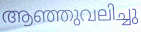
ആഞ്ഞുവലിച്ചു